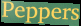
Peppers